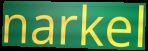
narkel